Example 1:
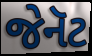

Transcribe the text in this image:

જેનૅટ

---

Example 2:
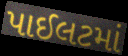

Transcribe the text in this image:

પાઈલટમાં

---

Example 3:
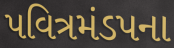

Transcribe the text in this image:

પવિત્રમંડપના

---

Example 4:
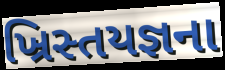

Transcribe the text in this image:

ખ્રિસ્તયજ્ઞના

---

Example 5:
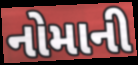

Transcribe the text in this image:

નોમાની